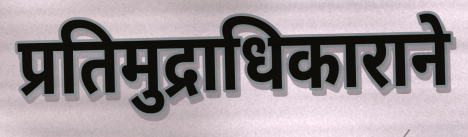
प्रतिमुद्राधिकाराने